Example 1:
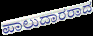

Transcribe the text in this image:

ಪಾಲುದಾರರಾದ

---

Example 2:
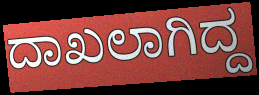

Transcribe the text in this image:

ದಾಖಲಾಗಿದ್ದ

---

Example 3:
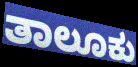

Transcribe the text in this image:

ತಾಲೂಕು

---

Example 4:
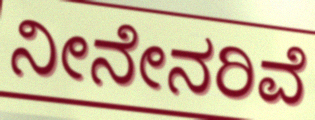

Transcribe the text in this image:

ನೀನೇನರಿವೆ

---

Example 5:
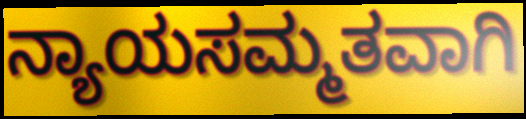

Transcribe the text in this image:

ನ್ಯಾಯಸಮ್ಮತವಾಗಿ